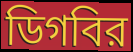
ডিগবির